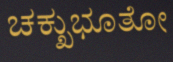
ಚಕ್ಖುಭೂತೋ